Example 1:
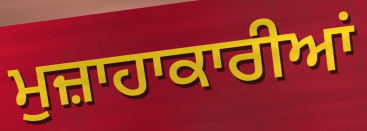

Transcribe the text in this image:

ਮੁਜ਼ਾਹਾਕਾਰੀਆਂ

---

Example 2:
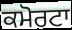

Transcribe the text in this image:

ਕਮੋਰਟਾ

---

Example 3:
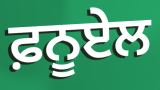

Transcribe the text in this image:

ਫ਼ਨੂਏਲ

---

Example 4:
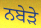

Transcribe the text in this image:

ਨਬੇੜੇ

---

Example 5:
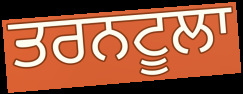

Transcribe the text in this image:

ਤਰਨਟੂਲਾ